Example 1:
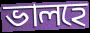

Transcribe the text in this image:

ভালহে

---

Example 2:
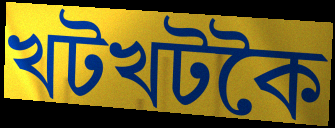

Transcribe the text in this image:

খটখটকৈ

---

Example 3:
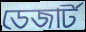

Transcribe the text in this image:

ডেজাৰ্ট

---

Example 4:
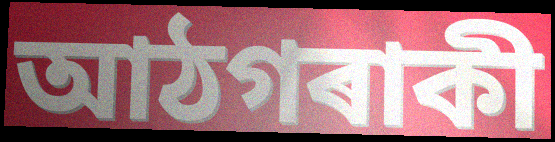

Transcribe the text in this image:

আঠগৰাকী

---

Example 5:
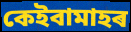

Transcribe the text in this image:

কেইবামাহৰ